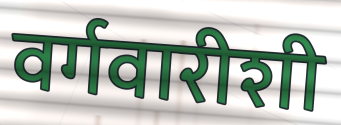
वर्गवारीशी